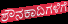
ಶೌನಕಾದಿಗಳಿಗೆ